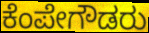
ಕೆಂಪೇಗೌಡರು